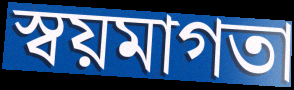
স্বয়মাগতা